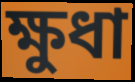
ক্ষুধা